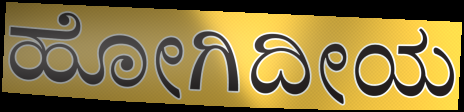
ಹೋಗಿದೀಯ